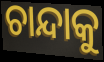
ଚାନ୍ଦାକୁ